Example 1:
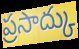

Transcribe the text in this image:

ప్రసాద్కు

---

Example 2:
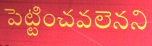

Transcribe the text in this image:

పెట్టించవలెనని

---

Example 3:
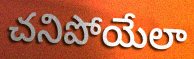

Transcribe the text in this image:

చనిపోయేలా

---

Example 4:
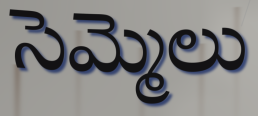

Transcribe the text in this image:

సెమ్మెలు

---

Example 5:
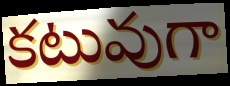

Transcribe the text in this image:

కటువుగా